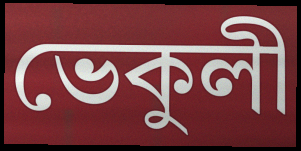
ভেকুলী